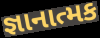
જ્ઞાનાત્મક